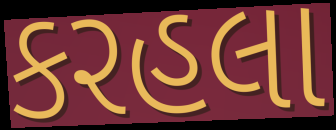
કરહલા